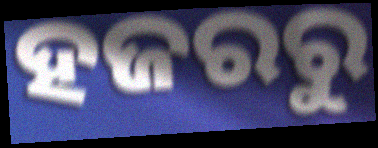
ହଜରରୁ